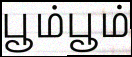
பூம்பூம்